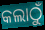
କଲାଠୁଁ